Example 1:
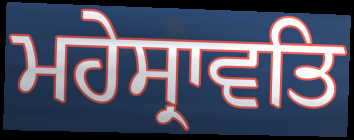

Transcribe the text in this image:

ਮਹੇਸ੍ਰਾਵਤਿ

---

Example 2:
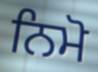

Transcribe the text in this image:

ਨਿਮੋ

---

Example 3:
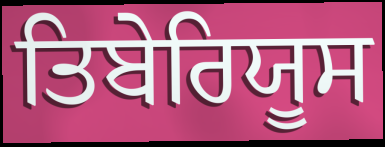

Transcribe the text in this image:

ਤਿਬੇਰਿਯੂਸ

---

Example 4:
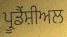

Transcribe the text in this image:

ਪ੍ਰੂਡੈਂਸ਼ੀਅਲ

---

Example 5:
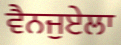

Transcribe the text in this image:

ਵੈਨਜੁਏਲਾ